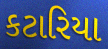
કટારિયા